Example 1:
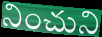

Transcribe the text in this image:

నించుని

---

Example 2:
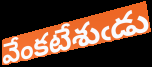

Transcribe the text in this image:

వేంకటేశుఁడు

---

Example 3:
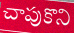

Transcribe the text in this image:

చాపుకొని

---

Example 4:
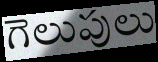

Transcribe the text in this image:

గెలుపులు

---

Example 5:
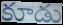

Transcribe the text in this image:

కూడు